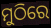
ମୁଠିରେ